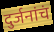
दुर्जनांचं